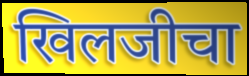
खिलजीचा